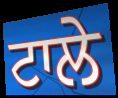
ਟਾਲੇ